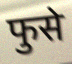
फुसे